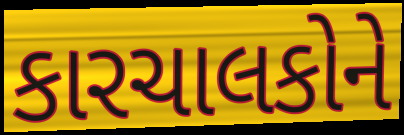
કારચાલકોને